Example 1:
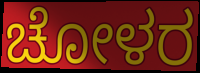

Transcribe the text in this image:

ಚೋಳರ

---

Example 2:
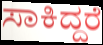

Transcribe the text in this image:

ಸಾಕಿದ್ದರೆ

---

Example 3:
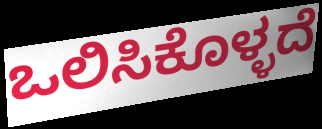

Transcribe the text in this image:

ಒಲಿಸಿಕೊಳ್ಳದೆ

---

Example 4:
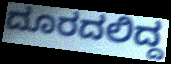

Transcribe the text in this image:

ದೂರದಲಿದ್ದ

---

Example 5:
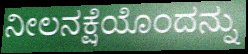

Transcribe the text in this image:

ನೀಲನಕ್ಷೆಯೊಂದನ್ನು